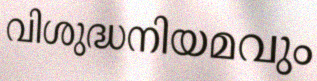
വിശുദ്ധനിയമവും